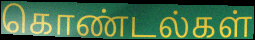
கொண்டல்கள்